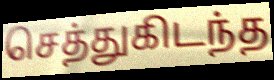
செத்துகிடந்த